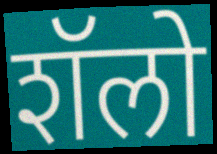
शॅलो